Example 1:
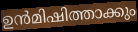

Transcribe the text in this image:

ഉൻമിഷിത്താക്കും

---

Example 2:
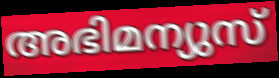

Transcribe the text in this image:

അഭിമന്യുസ്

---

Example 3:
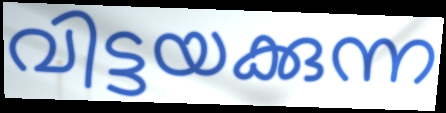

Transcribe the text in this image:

വിട്ടയക്കുന്ന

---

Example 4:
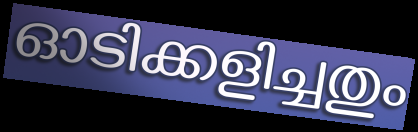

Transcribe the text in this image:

ഓടിക്കളിച്ചതും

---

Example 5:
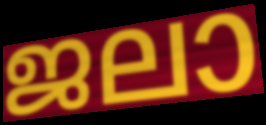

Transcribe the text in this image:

ജലാ